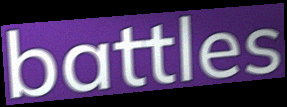
battles